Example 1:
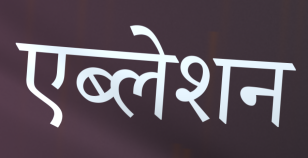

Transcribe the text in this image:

एब्लेशन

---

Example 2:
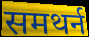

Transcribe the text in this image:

समथर्न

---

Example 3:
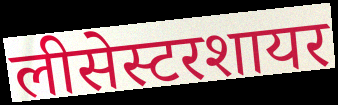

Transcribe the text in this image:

लीसेस्टरशायर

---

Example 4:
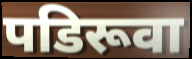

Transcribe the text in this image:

पडिरूवा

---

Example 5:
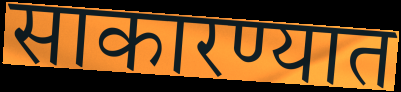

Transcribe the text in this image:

साकारण्यात